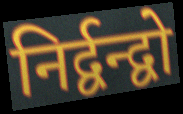
निर्द्वन्द्वो